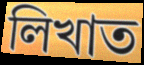
লিখাত